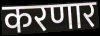
करणार